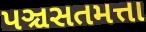
પઞ્ચસતમત્તા